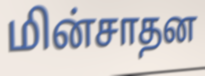
மின்சாதன